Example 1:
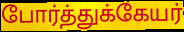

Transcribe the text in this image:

போர்த்துக்கேயர்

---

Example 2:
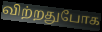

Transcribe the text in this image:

விற்றதுபோக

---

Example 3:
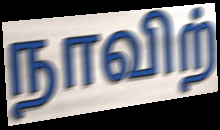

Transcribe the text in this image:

நாவிற்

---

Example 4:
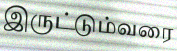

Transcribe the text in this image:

இருட்டும்வரை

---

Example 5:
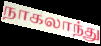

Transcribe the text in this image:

நாகலாந்து